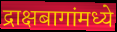
द्राक्षबागांमध्ये